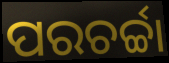
ପରଚର୍ଚ୍ଚା